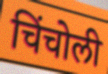
चिंचोली